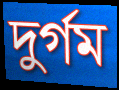
দুর্গম